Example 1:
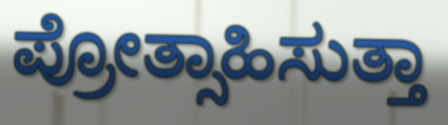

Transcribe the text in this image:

ಪ್ರೋತ್ಸಾಹಿಸುತ್ತಾ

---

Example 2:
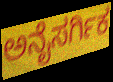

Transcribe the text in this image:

ಅನೈಸರ್ಗಿಕ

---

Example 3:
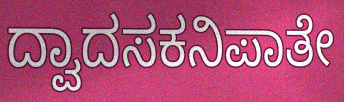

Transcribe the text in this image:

ದ್ವಾದಸಕನಿಪಾತೇ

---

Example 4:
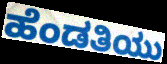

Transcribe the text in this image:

ಹೆಂಡತಿಯು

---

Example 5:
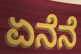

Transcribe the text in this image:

ಏನೆನೆ